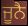
ਜੂਨੈ